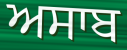
ਅਸਾਬ